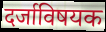
दर्जाविषयक